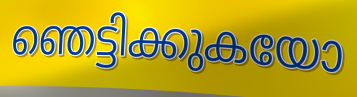
ഞെട്ടിക്കുകയോ